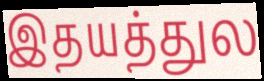
இதயத்துல